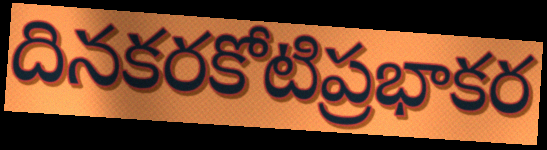
దినకరకోటిప్రభాకర